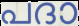
പദാ